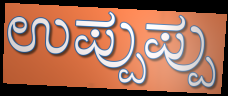
ಉಪ್ಪುಪ್ಪು